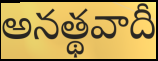
అనత్థవాదీ